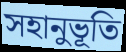
সহানুভূতি